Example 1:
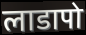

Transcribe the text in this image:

लाडापो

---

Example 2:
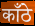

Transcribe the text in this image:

काँठे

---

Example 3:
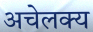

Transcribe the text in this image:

अचेलक्य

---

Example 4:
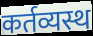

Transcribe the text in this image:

कर्तव्यस्थ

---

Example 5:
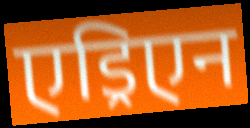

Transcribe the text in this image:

एड्रिएन